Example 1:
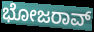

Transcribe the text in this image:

ಭೋಜರಾವ್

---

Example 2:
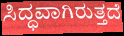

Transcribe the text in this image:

ಸಿದ್ಧವಾಗಿರುತ್ತದೆ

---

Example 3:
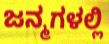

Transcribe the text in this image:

ಜನ್ಮಗಳಲ್ಲಿ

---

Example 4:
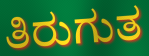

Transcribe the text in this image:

ತಿರುಗುತ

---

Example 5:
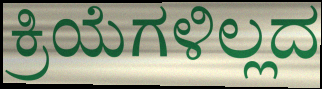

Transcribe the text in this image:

ಕ್ರಿಯೆಗಳಿಲ್ಲದ